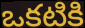
ఒకటికి